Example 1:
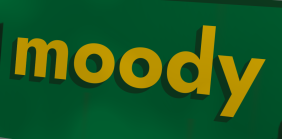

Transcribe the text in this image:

moody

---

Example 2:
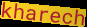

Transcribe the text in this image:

kharech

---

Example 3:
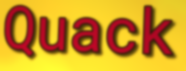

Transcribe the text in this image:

Quack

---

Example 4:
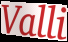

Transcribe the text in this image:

Valli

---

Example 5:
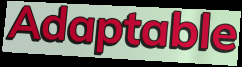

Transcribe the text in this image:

Adaptable